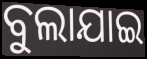
ବୁଲାଯାଇ